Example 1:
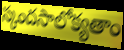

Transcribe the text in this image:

స్కందసాలోక్యతాం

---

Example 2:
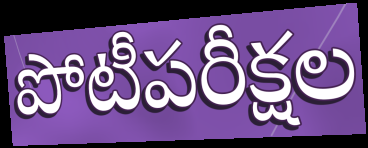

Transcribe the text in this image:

పోటీపరీక్షల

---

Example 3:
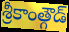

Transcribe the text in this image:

శ్రీకాంత్గౌడ్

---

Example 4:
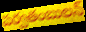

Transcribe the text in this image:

పర్వతంబులన్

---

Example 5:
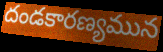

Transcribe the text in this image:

దండకారణ్యమున